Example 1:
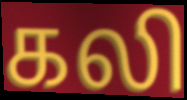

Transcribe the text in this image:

கலி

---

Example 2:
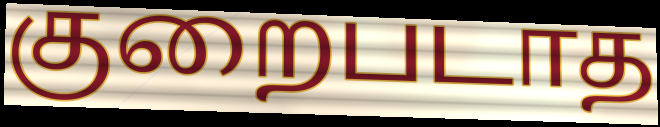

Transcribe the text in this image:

குறைபடாத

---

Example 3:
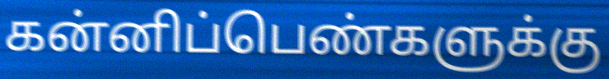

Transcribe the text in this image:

கன்னிப்பெண்களுக்கு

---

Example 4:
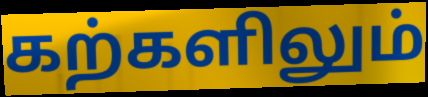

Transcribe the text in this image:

கற்களிலும்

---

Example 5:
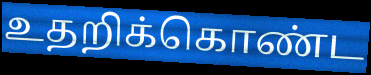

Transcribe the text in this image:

உதறிக்கொண்ட